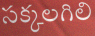
సక్కలగిలి